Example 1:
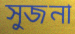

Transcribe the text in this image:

সুজনা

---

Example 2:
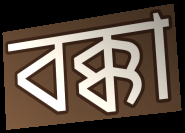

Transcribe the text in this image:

বক্কা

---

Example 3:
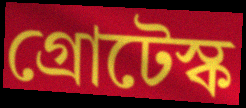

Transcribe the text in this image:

গ্রোটেস্ক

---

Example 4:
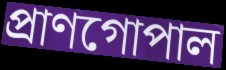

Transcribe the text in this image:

প্রাণগোপাল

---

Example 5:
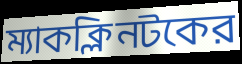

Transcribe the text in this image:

ম্যাকক্লিনটকের